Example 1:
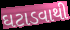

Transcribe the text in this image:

ઘટાડવાથી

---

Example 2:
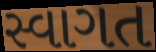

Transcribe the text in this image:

સ્વાગત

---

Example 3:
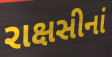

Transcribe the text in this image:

રાક્ષસીનાં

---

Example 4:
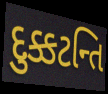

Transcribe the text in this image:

દુક્કટન્તિ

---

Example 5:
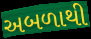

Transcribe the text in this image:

અબળાથી